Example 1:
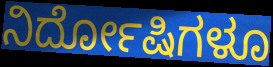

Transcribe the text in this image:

ನಿರ್ದೋಷಿಗಳೂ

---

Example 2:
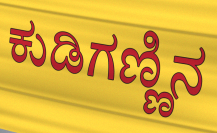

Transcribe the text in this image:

ಕುಡಿಗಣ್ಣಿನ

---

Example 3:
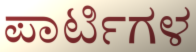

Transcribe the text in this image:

ಪಾರ್ಟಿಗಳ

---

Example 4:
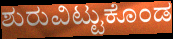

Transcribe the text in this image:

ಶುರುವಿಟ್ಟುಕೊಂಡ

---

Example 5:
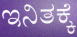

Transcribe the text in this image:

ಇನಿತಕ್ಕೆ